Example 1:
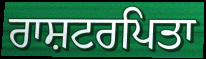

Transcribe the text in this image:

ਰਾਸ਼ਟਰਪਿਤਾ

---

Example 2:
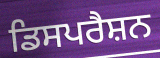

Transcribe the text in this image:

ਡਿਸਪਰੈਸ਼ਨ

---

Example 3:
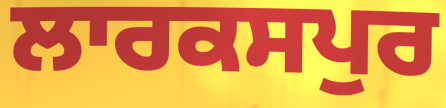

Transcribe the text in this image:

ਲਾਰਕਸਪੁਰ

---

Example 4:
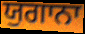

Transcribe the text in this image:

ਯੁਗਾਨਾ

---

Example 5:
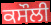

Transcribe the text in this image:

ਕਸੌਲੀ